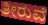
ತೀರುವೆ